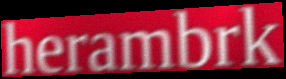
herambrk